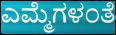
ಎಮ್ಮೆಗಳಂತೆ